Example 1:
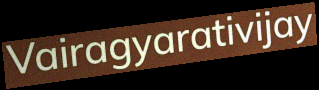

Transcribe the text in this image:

Vairagyarativijay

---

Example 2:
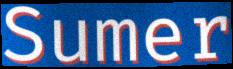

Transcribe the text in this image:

Sumer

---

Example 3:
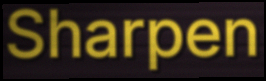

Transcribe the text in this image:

Sharpen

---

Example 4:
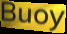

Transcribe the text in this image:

Buoy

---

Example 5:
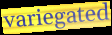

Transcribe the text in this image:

variegated